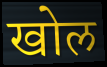
खोल